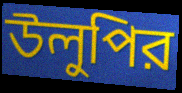
উলুপির